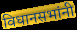
विधानसभांनी